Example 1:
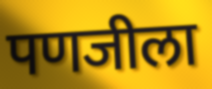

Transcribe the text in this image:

पणजीला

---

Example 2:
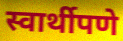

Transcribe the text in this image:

स्वार्थीपणे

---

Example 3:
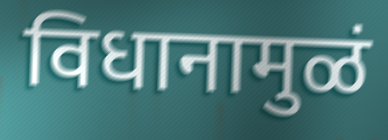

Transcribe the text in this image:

विधानामुळं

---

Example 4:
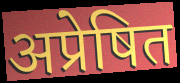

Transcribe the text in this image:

अप्रेषित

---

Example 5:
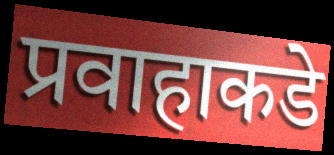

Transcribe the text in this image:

प्रवाहाकडे